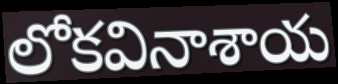
లోకవినాశాయ